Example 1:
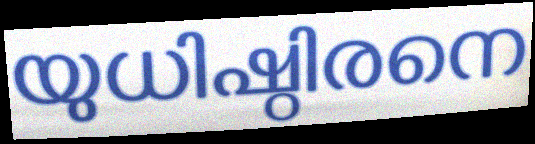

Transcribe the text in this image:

യുധിഷ്ഠിരനെ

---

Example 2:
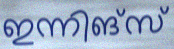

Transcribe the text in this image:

ഇന്നിങ്സ്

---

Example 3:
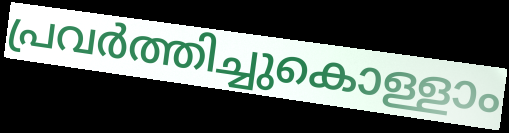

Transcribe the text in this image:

പ്രവർത്തിച്ചുകൊള്ളാം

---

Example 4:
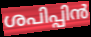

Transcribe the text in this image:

ശപിപ്പിൻ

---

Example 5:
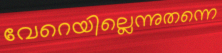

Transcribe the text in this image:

വേറെയില്ലെന്നുതന്നെ